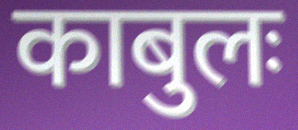
काबुलः